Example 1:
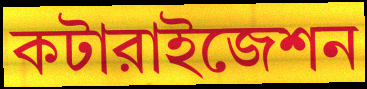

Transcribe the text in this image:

কটারাইজেশন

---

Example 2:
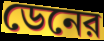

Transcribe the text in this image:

ডেনের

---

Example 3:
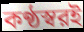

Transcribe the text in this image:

কণ্ঠস্বরই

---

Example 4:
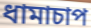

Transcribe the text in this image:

ধামাচাপ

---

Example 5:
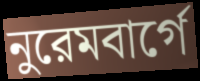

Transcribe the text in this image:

নুরেমবার্গে